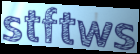
stftws